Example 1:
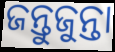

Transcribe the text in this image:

ଜନ୍ତୁଜୁନ୍ତା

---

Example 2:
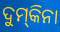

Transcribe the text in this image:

ଦୁମ୍‌କିନା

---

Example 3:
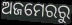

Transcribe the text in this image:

ଅଜମେରରୁ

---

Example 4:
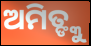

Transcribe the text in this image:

ଅମିତ୍ଙ୍କୁ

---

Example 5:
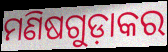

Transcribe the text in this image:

ମଣିଷଗୁଡ଼ାକର